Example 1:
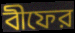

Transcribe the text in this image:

বীফের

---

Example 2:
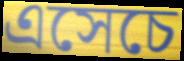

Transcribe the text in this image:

এসেচে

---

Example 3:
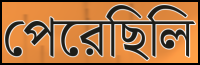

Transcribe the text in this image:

পেরেছিলি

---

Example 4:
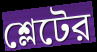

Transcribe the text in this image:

শ্লেটের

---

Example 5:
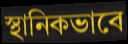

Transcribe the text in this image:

স্থানিকভাবে